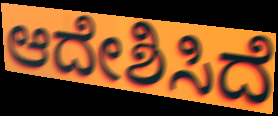
ಆದೇಶಿಸಿದೆ